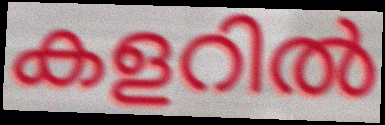
കളറിൽ